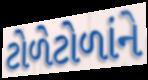
ટોળેટોળાંને